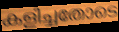
കളിച്ചതോടെ